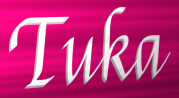
Tuka